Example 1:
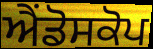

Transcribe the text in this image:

ਐਂਡੋਸਕੋਪ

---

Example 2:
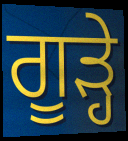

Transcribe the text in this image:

ਗੂੜ੍ਹੇ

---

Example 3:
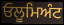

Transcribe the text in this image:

ਓਲੂਮਿਅੰਟ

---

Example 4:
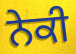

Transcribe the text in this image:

ਨੇਕੀ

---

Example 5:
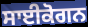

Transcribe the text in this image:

ਸਾਈਕੋਗਨ